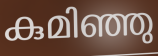
കുമിഞ്ഞു